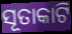
ସୂତାକାଟି